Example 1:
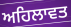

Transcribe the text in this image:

ਅਹਿਲਾਵਤ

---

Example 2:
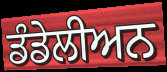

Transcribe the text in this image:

ਡੰਡੇਲੀਅਨ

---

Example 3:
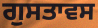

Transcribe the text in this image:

ਗੁਸਤਾਵਸ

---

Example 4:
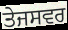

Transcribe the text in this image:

ਤੇਜਸਵਰ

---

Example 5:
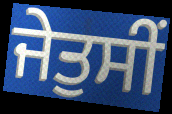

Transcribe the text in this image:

ਜੇਤੁਸੀਂ